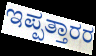
ಇಪ್ಪತ್ತಾರರ